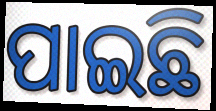
ପାଇଛି